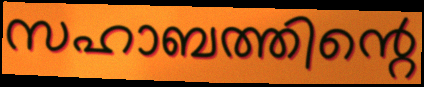
സഹാബത്തിന്റെ